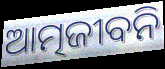
ଆତ୍ମଜୀବନି